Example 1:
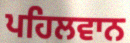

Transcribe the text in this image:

ਪਹਿਲਵਾਨ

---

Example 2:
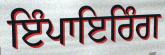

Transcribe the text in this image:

ਇੰਪਾਇਰਿੰਗ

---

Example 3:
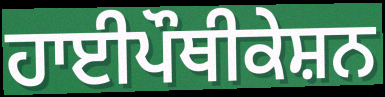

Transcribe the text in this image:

ਹਾਈਪੌਥੀਕੇਸ਼ਨ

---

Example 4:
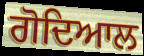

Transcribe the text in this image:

ਗੋਦਿਆਲ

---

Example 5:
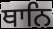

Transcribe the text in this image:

ਥਾਨਿ